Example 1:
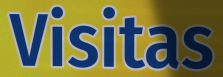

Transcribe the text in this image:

Visitas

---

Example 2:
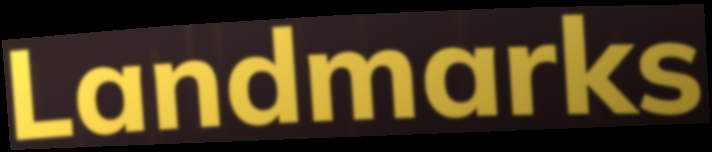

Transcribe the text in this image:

Landmarks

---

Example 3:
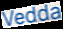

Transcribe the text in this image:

Vedda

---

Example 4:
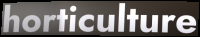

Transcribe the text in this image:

horticulture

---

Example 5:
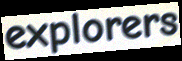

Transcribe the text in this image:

explorers